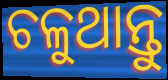
ଚଳୁଥାନ୍ତୁ